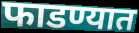
फाडण्यात